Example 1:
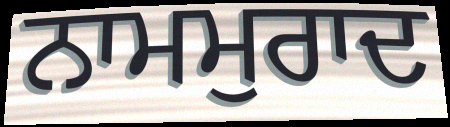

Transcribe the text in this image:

ਨਾਮਮੁਰਾਦ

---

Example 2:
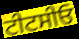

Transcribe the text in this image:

ਟੀਟਸੀਓ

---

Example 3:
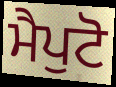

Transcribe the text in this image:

ਮੈਪੁਟੋ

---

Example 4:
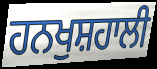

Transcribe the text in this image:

ਹਨਖੁਸ਼ਹਾਲੀ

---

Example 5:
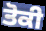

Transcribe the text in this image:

ਤੋਕੀ